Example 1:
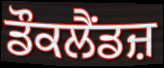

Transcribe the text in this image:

ਡੌਕਲੈਂਡਜ਼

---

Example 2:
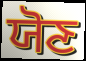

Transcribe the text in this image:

ਯੋਣ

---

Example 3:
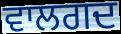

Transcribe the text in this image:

ਵਾਲਗਦ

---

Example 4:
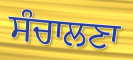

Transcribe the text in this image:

ਸੰਚਾਲਣਾ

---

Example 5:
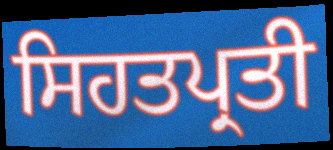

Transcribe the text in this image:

ਸਿਹਤਪ੍ਰਤੀ